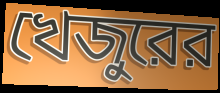
খেজুরের